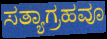
ಸತ್ಯಾಗ್ರಹವೂ